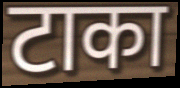
टाका